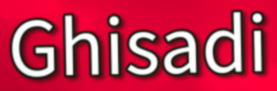
Ghisadi